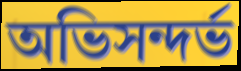
অভিসন্দর্ভ